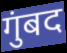
गुंबद